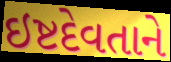
ઇષ્ટદેવતાને